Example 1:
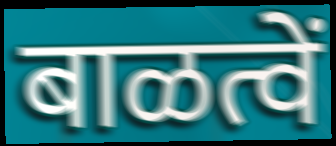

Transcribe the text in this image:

बाळत्वें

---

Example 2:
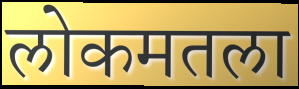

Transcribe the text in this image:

लोकमतला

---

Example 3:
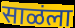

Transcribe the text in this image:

साळंला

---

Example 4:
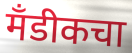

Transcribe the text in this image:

मँडीकचा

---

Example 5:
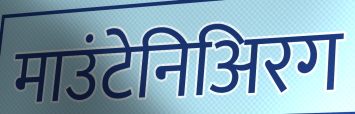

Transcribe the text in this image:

माउंटेनिअिरग